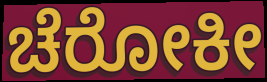
ಚೆರೋಕೀ